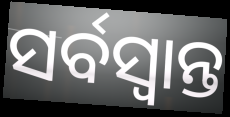
ସର୍ବସ୍ୱାନ୍ତ